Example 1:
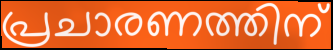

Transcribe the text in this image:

പ്രചാരണത്തിന്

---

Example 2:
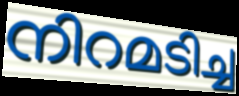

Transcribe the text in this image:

നിറമടിച്ച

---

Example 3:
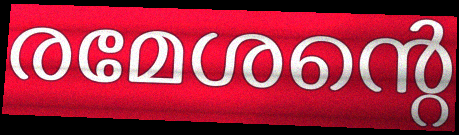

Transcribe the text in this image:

രമേശന്റെ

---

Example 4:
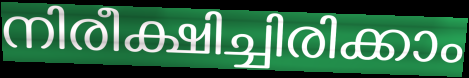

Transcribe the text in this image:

നിരീക്ഷിച്ചിരിക്കാം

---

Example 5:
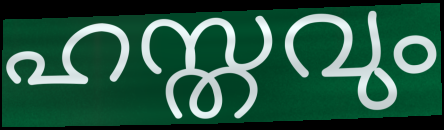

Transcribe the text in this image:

ഹസ്തവും